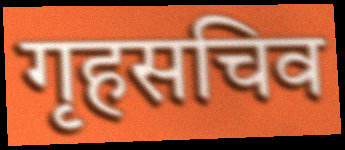
गृहसचिव